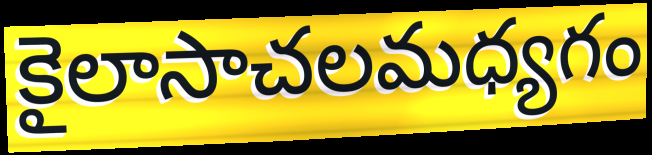
కైలాసాచలమధ్యగం